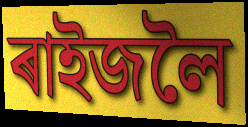
ৰাইজলৈ